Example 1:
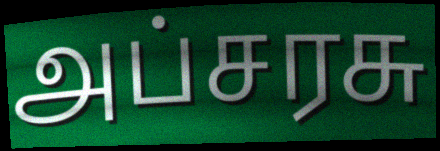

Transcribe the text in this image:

அப்சரசு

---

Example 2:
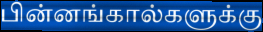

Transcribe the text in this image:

பின்னங்கால்களுக்கு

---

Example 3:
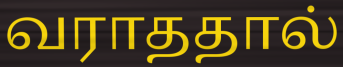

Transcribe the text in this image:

வராததால்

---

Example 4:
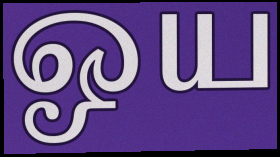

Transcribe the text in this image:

ஓய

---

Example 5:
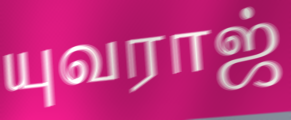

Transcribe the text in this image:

யுவராஜ்